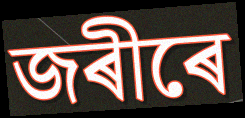
জৰীৰে